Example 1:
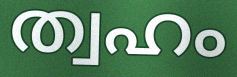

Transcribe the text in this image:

ത്വഹം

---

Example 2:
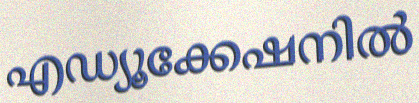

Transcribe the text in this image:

എഡ്യൂക്കേഷനിൽ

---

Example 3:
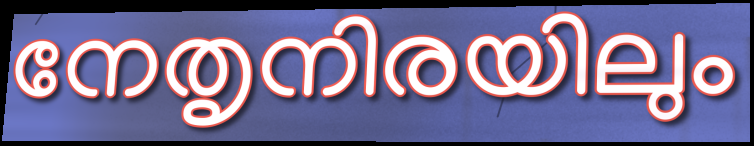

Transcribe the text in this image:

നേതൃനിരയിലും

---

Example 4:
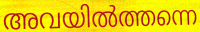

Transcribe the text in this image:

അവയിൽത്തന്നെ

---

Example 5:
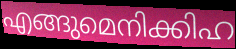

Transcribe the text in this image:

എങ്ങുമെനിക്കിഹ